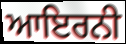
ਆਇਰਨੀ